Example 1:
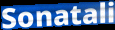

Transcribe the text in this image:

Sonatali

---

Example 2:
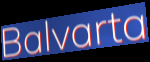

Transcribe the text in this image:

Balvarta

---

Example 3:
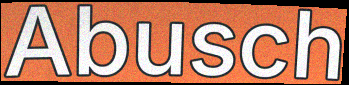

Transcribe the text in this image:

Abusch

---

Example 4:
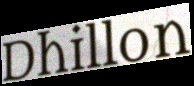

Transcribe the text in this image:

Dhillon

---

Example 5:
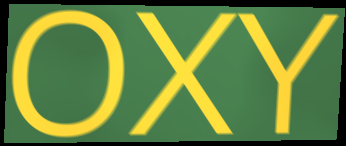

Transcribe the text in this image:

OXY